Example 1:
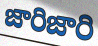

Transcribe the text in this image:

జారిజారి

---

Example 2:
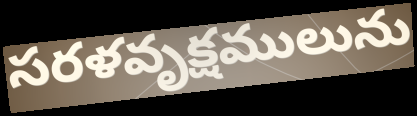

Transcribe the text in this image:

సరళవృక్షములును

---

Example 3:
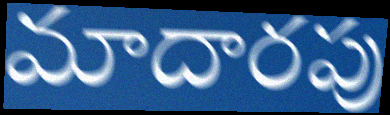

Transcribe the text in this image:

మాదారపు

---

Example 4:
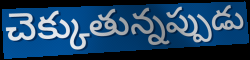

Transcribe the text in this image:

చెక్కుతున్నప్పుడు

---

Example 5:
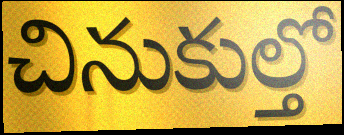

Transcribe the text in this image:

చినుకుల్తో